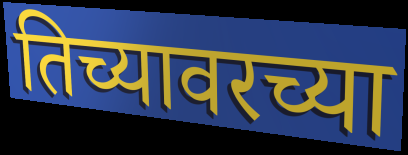
तिच्यावरच्या